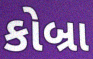
કોબ્રા